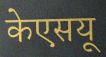
केएसयू